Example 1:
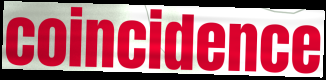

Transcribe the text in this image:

coincidence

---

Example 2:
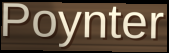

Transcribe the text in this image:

Poynter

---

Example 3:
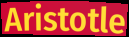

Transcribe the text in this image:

Aristotle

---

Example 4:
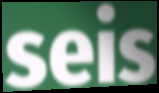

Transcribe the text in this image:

seis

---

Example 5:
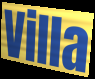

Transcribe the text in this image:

Villa